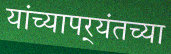
यांच्यापर्यंतच्या